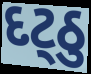
દટ્ઠુ